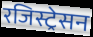
रजिस्ट्रेसन